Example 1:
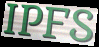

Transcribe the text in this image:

IPFS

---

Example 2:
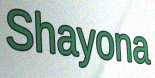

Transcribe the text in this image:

Shayona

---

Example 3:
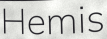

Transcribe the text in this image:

Hemis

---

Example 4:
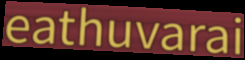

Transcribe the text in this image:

eathuvarai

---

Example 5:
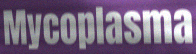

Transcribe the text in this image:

Mycoplasma